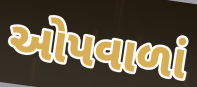
ઓપવાળાં